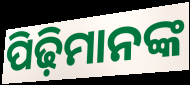
ପିଢ଼ିମାନଙ୍କ